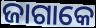
ଜାଗାକେ